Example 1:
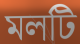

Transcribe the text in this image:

মলটি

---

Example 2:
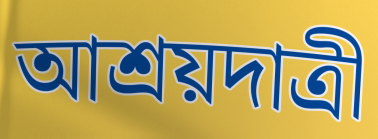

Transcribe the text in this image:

আশ্রয়দাত্রী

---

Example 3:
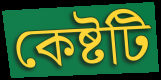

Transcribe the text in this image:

কেষ্টটি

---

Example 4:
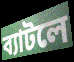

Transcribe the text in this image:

ব্যাটলে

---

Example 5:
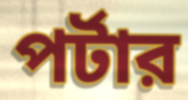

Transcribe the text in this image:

পর্টার